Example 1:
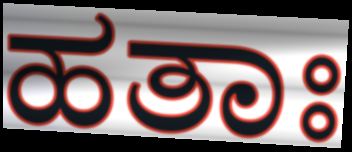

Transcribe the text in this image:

ಹತಾಃ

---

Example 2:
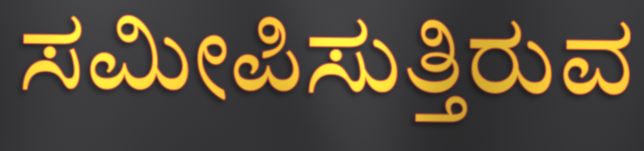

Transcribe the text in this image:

ಸಮೀಪಿಸುತ್ತಿರುವ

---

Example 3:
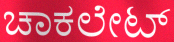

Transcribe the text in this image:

ಚಾಕಲೇಟ್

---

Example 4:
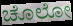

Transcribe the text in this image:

ಚೊಲೋ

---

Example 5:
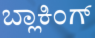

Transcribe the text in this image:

ಬ್ಲಾಕಿಂಗ್